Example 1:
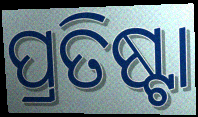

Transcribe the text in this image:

ପ୍ରତିଷ୍ଟା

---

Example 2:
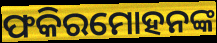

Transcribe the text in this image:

ଫକିରମୋହନଙ୍କ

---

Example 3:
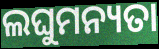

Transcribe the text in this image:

ଲଘୁମନ୍ୟତା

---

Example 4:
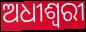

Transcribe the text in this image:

ଅଧୀଶ୍ୱରୀ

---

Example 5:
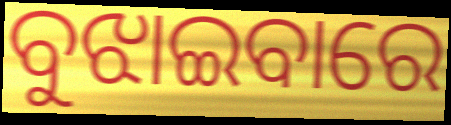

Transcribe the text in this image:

ବୁଝାଇବାରେ